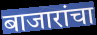
बाजारांचा